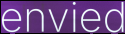
envied